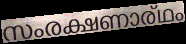
സംരക്ഷണാര്ഥം